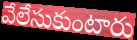
వేలేసుకుంటారు